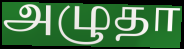
அழுதா